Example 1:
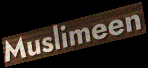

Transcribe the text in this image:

Muslimeen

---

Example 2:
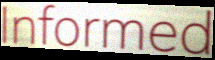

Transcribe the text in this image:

Informed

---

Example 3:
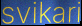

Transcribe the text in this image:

svikari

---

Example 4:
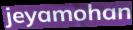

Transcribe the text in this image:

jeyamohan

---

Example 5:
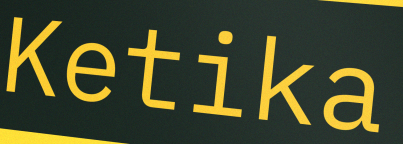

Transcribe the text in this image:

Ketika